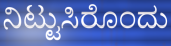
ನಿಟ್ಟುಸಿರೊಂದು